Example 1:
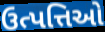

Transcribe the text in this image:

ઉત્પત્તિઓ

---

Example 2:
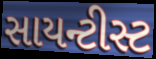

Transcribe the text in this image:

સાયન્ટીસ્ટ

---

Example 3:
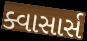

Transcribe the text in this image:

ક્વાસાર્સ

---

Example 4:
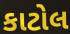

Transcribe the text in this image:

કાટોલ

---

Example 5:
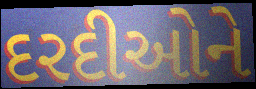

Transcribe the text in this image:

દરદીઓને